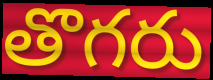
తొగరు